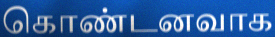
கொண்டனவாக